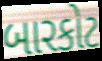
બારકોટ